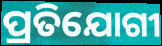
ପ୍ରତିଯୋଗୀ